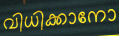
വിധിക്കാനോ